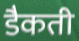
डैकती